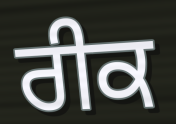
ਰੀਕ